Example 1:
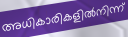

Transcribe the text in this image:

അധികാരികളിൽനിന്ന്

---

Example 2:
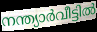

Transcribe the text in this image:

നന്ത്യാർവീട്ടിൽ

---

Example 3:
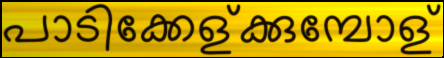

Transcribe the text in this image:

പാടിക്കേള്ക്കുമ്പോള്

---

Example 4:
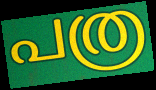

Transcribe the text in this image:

പത്ര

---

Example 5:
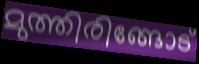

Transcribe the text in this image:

മുത്തിരിങ്ങോട്